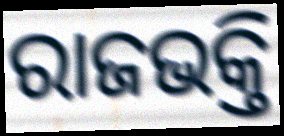
ରାଜଭକ୍ତି